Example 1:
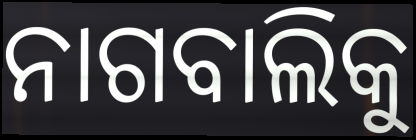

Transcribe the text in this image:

ନାଗବାଲିକୁ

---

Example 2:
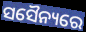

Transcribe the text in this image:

ସସୈନ୍ୟରେ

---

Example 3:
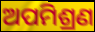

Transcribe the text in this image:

ଅପମିଶ୍ରଣ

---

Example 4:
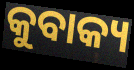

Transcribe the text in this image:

କୁବାକ୍ୟ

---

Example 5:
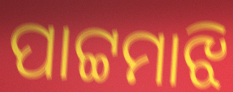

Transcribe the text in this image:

ପାଟ୍ଟମାଝି